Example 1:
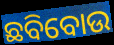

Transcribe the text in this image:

ଛବିବୋଉ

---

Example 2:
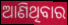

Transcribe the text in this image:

ଆଣିଥିବାର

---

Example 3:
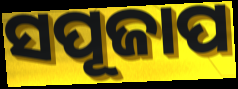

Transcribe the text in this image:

ସପୂଜାପ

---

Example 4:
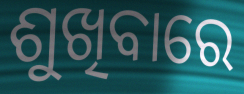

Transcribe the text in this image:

ଶୁଖିବାରେ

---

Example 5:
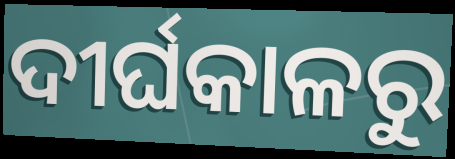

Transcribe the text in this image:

ଦୀର୍ଘକାଳରୁ